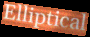
Elliptical